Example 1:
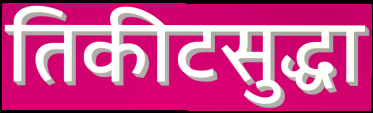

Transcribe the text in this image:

तिकीटसुद्धा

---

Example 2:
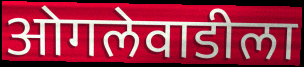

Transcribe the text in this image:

ओगलेवाडीला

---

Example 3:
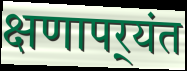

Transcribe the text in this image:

क्षणापर्यंत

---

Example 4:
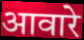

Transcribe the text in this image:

आवारे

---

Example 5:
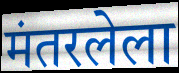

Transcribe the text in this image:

मंतरलेला